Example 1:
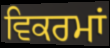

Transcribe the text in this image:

ਵਿਕਰਮਾਂ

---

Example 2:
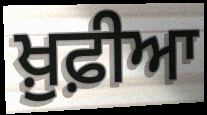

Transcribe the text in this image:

ਖ਼ੁਫ਼ੀਆ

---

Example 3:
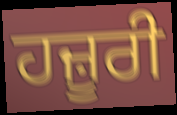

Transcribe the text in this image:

ਹਜ਼ੂਰੀ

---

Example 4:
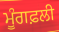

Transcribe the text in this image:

ਮੂੰਗਫ਼ਲੀ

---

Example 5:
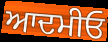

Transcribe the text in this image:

ਆਦਮੀਓ